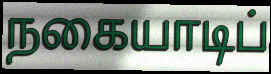
நகையாடிப்